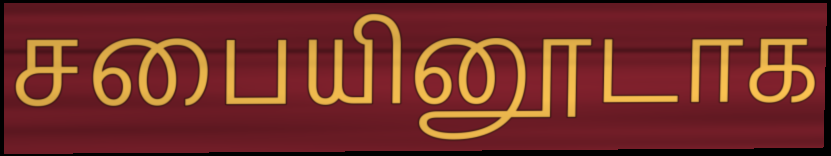
சபையினூடாக